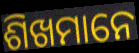
ଶିଖମାନେ